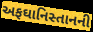
અફઘાનિસ્તાનની